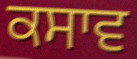
ਕਸਾਵ